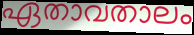
ഏതാവതാലം